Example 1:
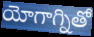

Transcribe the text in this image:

యోగాగ్నితో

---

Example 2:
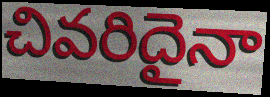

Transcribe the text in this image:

చివరిదైనా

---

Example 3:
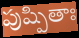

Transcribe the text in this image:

పుష్పితాః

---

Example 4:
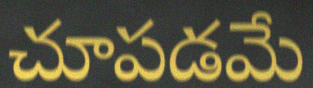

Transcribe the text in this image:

చూపడమే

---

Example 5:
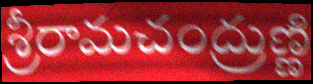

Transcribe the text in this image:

శ్రీరామచంద్రుణ్ణి